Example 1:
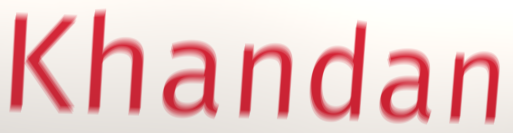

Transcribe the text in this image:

Khandan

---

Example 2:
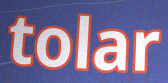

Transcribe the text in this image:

tolar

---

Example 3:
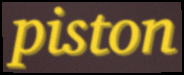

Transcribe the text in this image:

piston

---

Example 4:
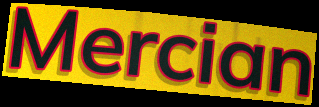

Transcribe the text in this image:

Mercian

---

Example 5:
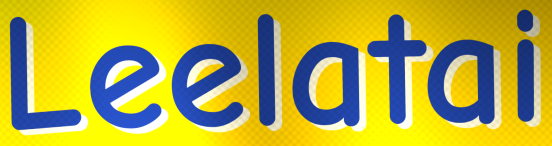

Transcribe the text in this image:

Leelatai